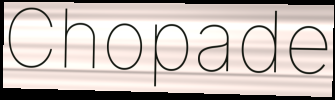
Chopade